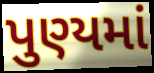
પુણ્યમાં